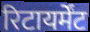
रिटायर्मेंट